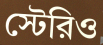
স্টেরিও